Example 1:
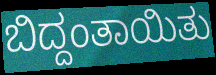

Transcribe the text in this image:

ಬಿದ್ದಂತಾಯಿತು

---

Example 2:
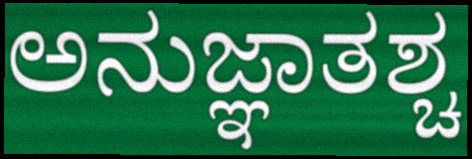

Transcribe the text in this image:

ಅನುಜ್ಞಾತಶ್ಚ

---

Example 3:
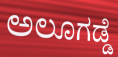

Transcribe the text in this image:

ಅಲೂಗಡ್ಡೆ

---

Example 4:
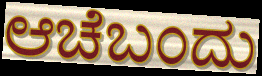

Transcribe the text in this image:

ಆಚೆಬಂದು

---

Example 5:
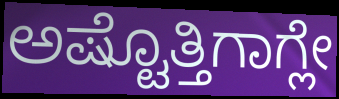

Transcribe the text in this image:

ಅಷ್ಟೊತ್ತಿಗಾಗ್ಲೇ